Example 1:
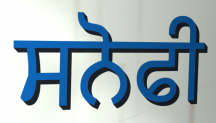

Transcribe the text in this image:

ਸਨੋਫੀ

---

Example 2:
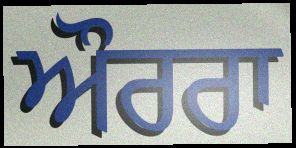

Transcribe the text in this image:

ਔਰਰਾ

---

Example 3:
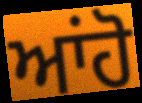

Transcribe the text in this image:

ਆਂਹੋ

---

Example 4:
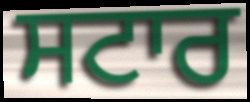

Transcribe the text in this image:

ਸਟਾਰ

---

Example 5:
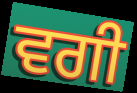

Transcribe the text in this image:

ਵਗੀ